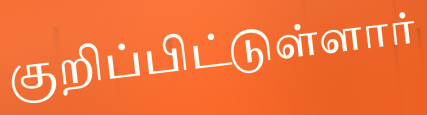
குறிப்பிட்டுள்ளார்